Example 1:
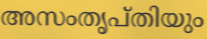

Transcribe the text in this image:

അസംതൃപ്തിയും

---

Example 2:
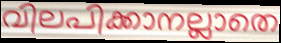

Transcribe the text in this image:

വിലപിക്കാനല്ലാതെ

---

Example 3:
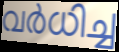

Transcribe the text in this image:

വർധിച്ച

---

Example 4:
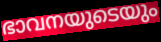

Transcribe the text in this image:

ഭാവനയുടെയും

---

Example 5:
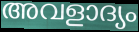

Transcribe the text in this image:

അവളാദ്യം